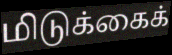
மிடுக்கைக்